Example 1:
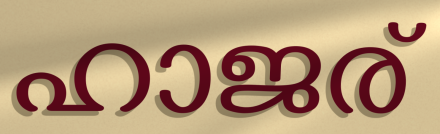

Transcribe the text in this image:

ഹാജര്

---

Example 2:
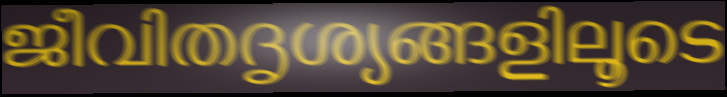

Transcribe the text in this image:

ജീവിതദൃശ്യങ്ങളിലൂടെ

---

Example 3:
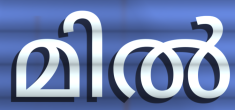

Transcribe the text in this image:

മിൽ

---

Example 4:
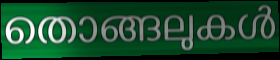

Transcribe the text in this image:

തൊങ്ങലുകൾ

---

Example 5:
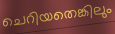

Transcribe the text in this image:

ചെറിയതെങ്കിലും